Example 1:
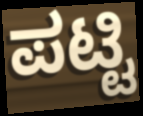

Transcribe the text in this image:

ಪಟ್ಟಿ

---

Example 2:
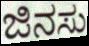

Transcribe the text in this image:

ಜಿನಸು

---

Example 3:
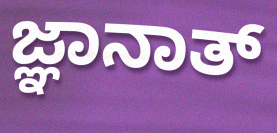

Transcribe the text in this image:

ಜ್ಞಾನಾತ್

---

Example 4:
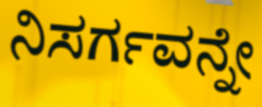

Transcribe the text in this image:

ನಿಸರ್ಗವನ್ನೇ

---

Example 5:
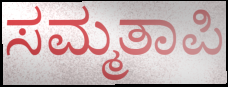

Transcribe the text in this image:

ಸಮ್ಮತಾಪಿ